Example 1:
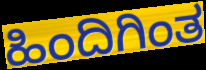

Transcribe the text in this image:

ಹಿಂದಿಗಿಂತ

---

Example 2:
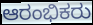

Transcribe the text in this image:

ಆರಂಭಿಕರು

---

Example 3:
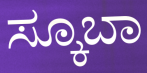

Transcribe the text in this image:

ಸ್ಕೂಬಾ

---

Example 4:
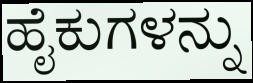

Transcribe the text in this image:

ಹೈಕುಗಳನ್ನು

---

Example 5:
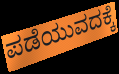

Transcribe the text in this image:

ಪಡೆಯುವದಕ್ಕೆ